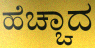
ಹೆಚ್ಚಾದ